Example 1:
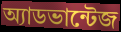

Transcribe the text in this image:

অ্যাডভান্টেজ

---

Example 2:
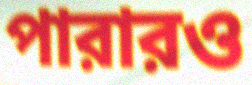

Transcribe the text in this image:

পারারও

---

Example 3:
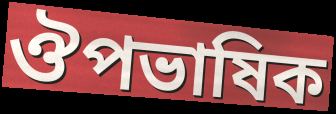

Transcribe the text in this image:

ঔপভাষিক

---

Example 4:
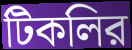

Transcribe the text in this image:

টিকলির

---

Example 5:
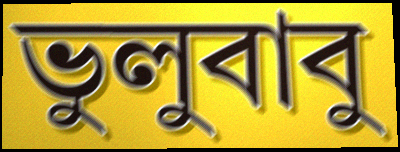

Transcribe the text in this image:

ভুলুবাবু